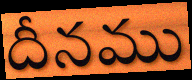
దీనము